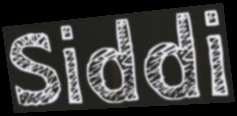
Siddi